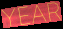
YEAR